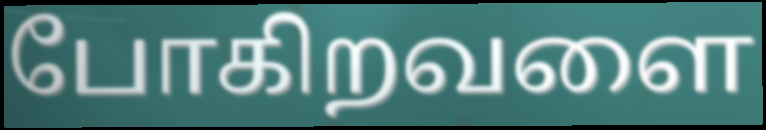
போகிறவளை